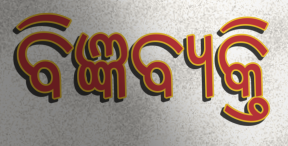
ବିଜ୍ଞବ୍ୟକ୍ତି